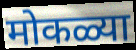
मोकळ्या